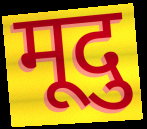
मूदु